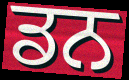
ਡਨ